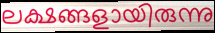
ലക്ഷങ്ങളായിരുന്നു